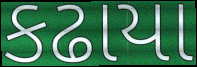
કઢાયા